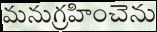
మనుగ్రహించెను